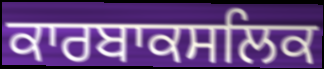
ਕਾਰਬਾਕਸਲਿਕ